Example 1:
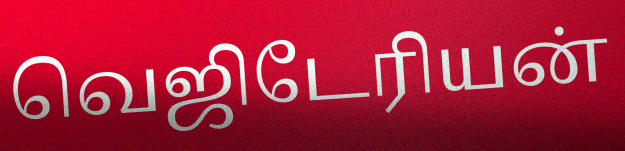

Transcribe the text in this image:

வெஜிடேரியன்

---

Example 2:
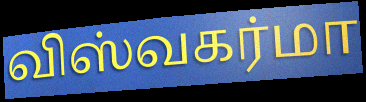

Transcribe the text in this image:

விஸ்வகர்மா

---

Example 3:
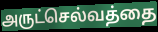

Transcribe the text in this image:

அருட்செல்வத்தை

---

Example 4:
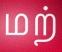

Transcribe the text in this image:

மற்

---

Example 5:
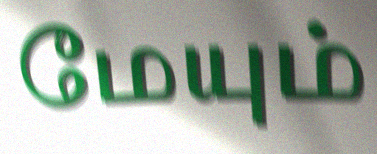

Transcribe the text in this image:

மேயும்